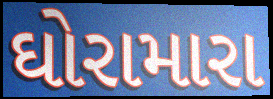
ઘોરામારા